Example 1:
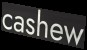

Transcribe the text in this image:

cashew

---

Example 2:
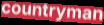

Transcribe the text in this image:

countryman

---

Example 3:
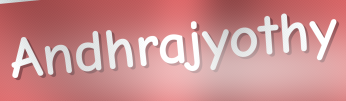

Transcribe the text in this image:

Andhrajyothy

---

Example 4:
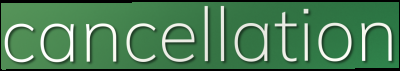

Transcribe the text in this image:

cancellation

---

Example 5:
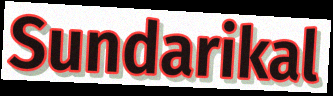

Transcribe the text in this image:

Sundarikal